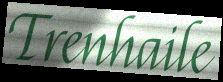
Trenhaile